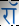
रॉ